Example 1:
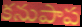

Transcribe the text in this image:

కనుపాప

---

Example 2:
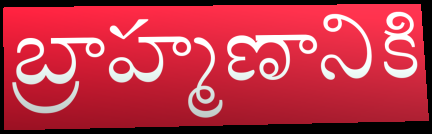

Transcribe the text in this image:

బ్రాహ్మణానికి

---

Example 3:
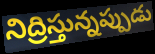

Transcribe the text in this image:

నిద్రిస్తున్నప్పుడు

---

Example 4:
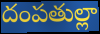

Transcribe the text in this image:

దంపతుల్లా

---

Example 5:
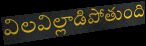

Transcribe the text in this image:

విలవిల్లాడిపోతుంది